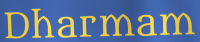
Dharmam